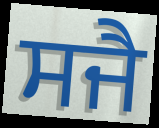
ਸਜੈ